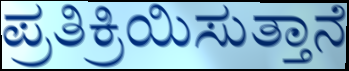
ಪ್ರತಿಕ್ರಿಯಿಸುತ್ತಾನೆ